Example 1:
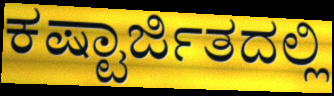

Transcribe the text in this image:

ಕಷ್ಟಾರ್ಜಿತದಲ್ಲಿ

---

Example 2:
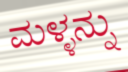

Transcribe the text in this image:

ಮಳ್ಳನ್ನು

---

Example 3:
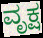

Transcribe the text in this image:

ವೃಕ್ಷ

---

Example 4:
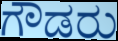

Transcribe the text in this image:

ಗೌಡರು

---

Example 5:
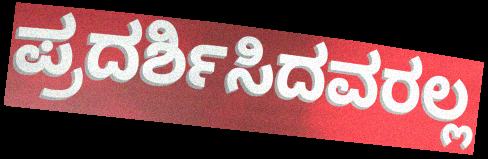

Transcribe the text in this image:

ಪ್ರದರ್ಶಿಸಿದವರಲ್ಲ